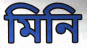
মিনি